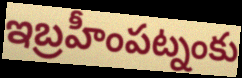
ఇబ్రహీంపట్నంకు